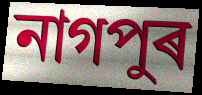
নাগপুৰ